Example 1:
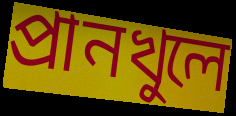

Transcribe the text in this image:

প্রানখুলে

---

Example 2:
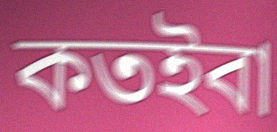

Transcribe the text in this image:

কতইবা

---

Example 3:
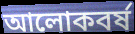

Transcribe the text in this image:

আলোকবর্ষ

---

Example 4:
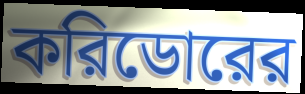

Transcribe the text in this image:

করিডোরের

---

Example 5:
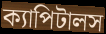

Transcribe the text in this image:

ক্যাপিটালস